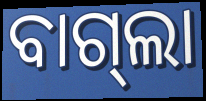
ବାଗ୍‌ଲା